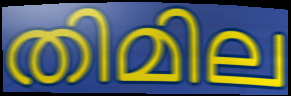
തിമില